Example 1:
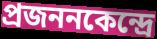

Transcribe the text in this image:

প্রজননকেন্দ্রে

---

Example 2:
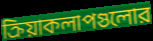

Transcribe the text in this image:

ক্রিয়াকলাপগুলোর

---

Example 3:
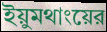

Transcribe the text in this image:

ইয়ুমথাংয়ের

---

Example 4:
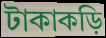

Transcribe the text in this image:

টাকাকড়ি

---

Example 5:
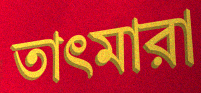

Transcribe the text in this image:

তাৎমারা